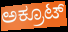
ಅಕ್ರೂಟ್